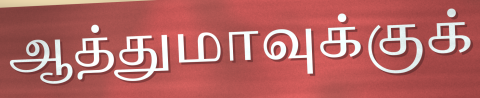
ஆத்துமாவுக்குக்